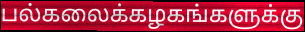
பல்கலைக்கழகங்களுக்கு